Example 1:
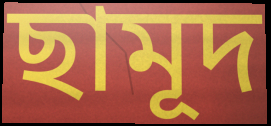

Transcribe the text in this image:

ছামূদ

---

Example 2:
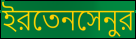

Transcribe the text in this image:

ইরতেনসেনুর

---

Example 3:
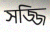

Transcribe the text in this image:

সজ্জি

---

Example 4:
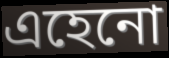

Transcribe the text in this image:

এহেনো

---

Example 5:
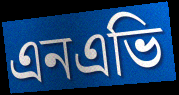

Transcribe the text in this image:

এনএভি